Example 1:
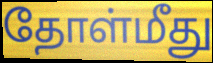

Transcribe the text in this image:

தோள்மீது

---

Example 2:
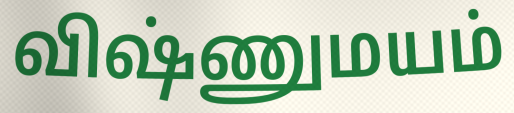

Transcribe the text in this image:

விஷ்ணுமயம்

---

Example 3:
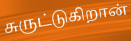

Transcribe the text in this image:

சுருட்டுகிறான்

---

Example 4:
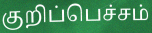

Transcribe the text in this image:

குறிப்பெச்சம்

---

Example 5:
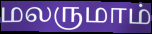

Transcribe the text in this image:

மலருமாம்